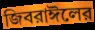
জিবরাঈলের